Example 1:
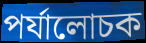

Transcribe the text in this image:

পর্যালোচক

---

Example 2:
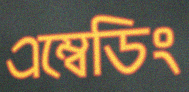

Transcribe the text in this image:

এম্বেডিং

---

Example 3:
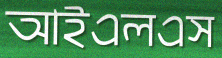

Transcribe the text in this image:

আইএলএস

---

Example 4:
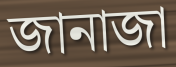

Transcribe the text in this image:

জানাজা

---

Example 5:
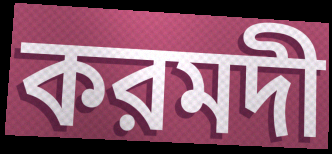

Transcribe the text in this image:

করমদী